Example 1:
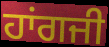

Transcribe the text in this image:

ਹਾਂਗਜੀ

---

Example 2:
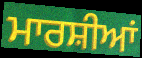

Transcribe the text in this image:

ਮਾਰਸ਼ੀਆਂ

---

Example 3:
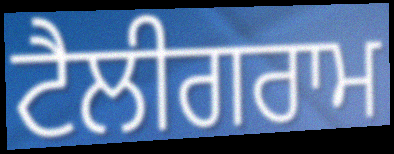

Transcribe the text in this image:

ਟੈਲੀਗਰਾਮ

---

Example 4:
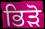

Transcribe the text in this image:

ਭਿੜੋ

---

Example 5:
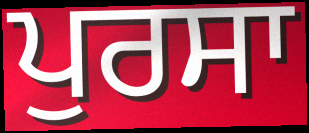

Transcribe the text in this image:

ਪੁਰਸਾ